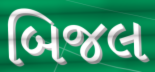
બિજલ